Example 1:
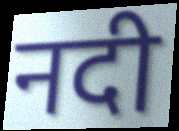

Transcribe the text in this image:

नदी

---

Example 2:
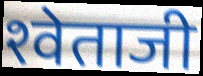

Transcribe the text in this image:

श्वेताजी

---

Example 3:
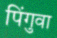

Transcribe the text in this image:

पिंगुवा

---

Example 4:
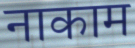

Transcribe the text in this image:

नाकाम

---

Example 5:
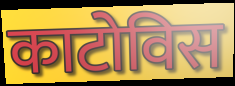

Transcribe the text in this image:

काटोविस